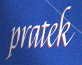
pratek